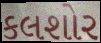
કલશોર